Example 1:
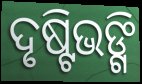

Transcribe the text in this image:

ଦୃଷ୍ଟିଭଙ୍ଗି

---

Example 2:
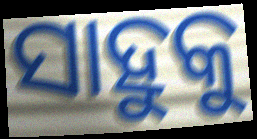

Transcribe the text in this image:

ସାହୁକୁ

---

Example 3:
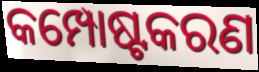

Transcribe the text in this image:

କମ୍ପୋଷ୍ଟକରଣ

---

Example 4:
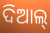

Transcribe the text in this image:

ଦିଆଲ୍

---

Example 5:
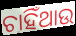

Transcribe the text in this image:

ଚାହିଁଥାଉ